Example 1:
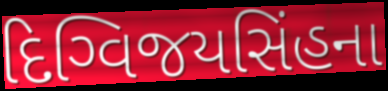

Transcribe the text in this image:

દિગ્વિજયસિંહના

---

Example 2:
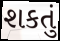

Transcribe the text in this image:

શકતું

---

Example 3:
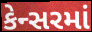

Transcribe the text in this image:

કેન્સરમાં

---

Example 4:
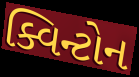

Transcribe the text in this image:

ક્વિન્ટોન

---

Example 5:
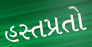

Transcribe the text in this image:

હસ્તપ્રતો